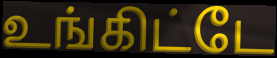
உங்கிட்டே